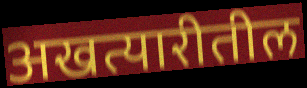
अखत्यारीतील